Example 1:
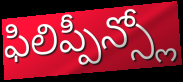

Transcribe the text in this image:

ఫిలిప్పీన్స్లో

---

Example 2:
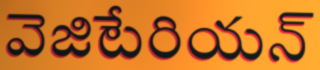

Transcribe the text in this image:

వెజిటేరియన్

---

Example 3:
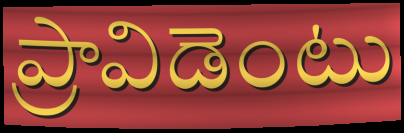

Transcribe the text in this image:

ప్రావిడెంటు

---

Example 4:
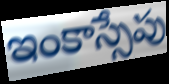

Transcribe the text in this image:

ఇంకాస్సేపు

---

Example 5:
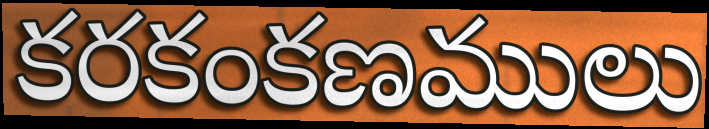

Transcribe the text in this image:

కరకంకణములు